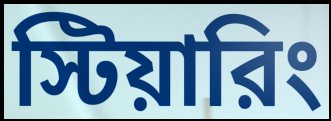
স্টিয়ারিং